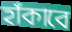
হাঁকাবে